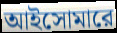
আইসোমারে